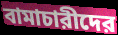
বামাচারীদের